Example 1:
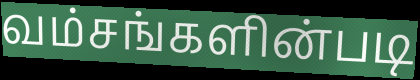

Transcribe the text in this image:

வம்சங்களின்படி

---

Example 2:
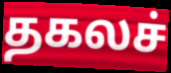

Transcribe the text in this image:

தகலச்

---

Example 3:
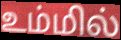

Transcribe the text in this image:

உம்மில்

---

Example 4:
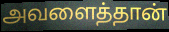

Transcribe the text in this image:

அவளைத்தான்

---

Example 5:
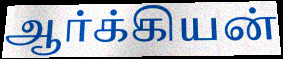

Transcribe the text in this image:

ஆர்க்கியன்